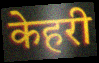
केहरी